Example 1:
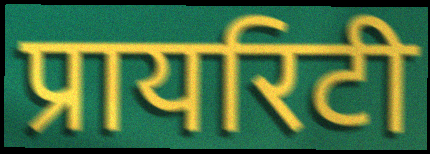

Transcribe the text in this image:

प्रायरिटी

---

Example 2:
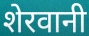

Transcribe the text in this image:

शेरवानी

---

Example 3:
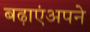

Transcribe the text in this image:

बढ़ाएंअपने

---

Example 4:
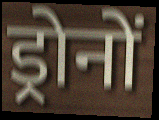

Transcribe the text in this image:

ड्रोनों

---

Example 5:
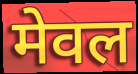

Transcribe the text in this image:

मेवल